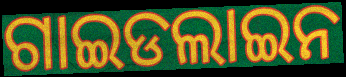
ଗାଇଡଲାଇନ